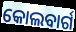
କୋଲବାର୍ଗ